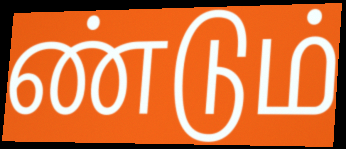
ண்டும்